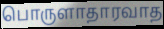
பொருளாதாரவாத